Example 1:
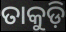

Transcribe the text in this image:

ତାକୁଡ଼ି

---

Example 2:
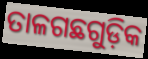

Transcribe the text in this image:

ତାଳଗଛଗୁଡ଼ିକ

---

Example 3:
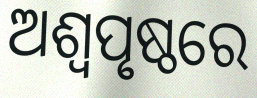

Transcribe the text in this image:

ଅଶ୍ୱପୃଷ୍ଠରେ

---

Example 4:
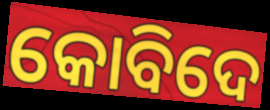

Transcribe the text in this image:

କୋବିଦେ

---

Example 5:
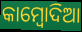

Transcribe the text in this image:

କାମ୍ବୋଦିଆ